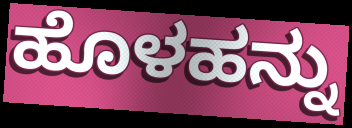
ಹೊಳಹನ್ನು